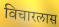
विचारलास